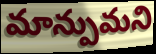
మాన్పుమని